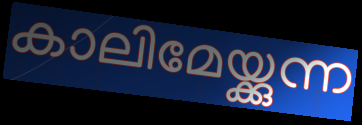
കാലിമേയ്ക്കുന്ന